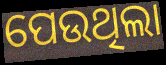
ପେଉଥିଲା